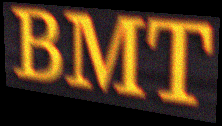
BMT